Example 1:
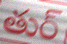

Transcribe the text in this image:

తుర్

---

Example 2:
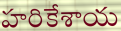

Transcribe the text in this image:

హరికేశాయ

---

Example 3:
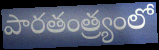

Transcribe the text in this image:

పారతంత్ర్యంలో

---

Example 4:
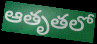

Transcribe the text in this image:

ఆతృతలో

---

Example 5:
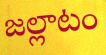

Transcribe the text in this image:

జల్లాటం